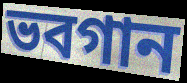
ভবগান